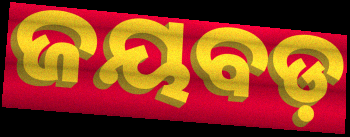
ଜୟବଡ଼